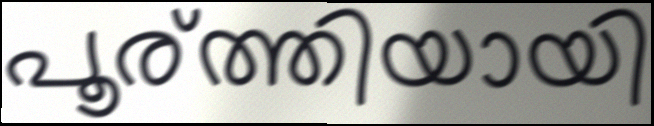
പൂര്ത്തിയായി